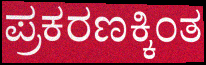
ಪ್ರಕರಣಕ್ಕಿಂತ